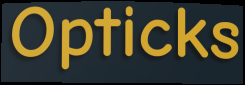
Opticks